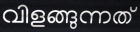
വിളങ്ങുന്നത്